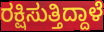
ರಕ್ಷಿಸುತ್ತಿದ್ದಾಳೆ